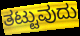
ತಟ್ಟುವುದು